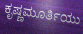
ಕೃಷ್ಣಮೂರ್ತಿಯು